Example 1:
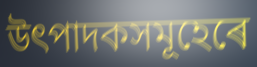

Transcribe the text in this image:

উৎপাদকসমূহেৰে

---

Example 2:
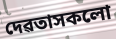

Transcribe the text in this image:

দেৱতাসকলো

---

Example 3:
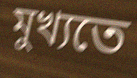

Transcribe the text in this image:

মুখ্যতে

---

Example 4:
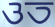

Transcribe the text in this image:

ওত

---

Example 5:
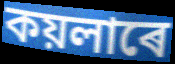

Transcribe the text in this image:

কয়লাৰে